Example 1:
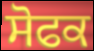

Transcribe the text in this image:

ਸੋਫਕ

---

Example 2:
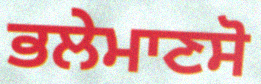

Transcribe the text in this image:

ਭਲੇਮਾਣਸੋ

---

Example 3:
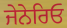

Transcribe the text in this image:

ਜੇਨੇਰਿਓ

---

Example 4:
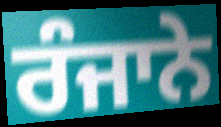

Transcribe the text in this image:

ਰੰਜਾਨੇ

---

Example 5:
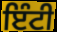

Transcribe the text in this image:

ਇੰਟੀ